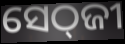
ସେଠ୍‌ଜୀ